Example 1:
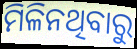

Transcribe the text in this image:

ମିଳିନଥିବାରୁ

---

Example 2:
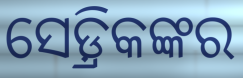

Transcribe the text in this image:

ସେଡ଼୍ରିକଙ୍କର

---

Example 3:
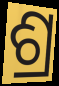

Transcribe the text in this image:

ଶ୍ର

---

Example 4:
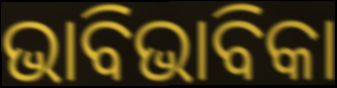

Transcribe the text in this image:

ଭାବିଭାବିକା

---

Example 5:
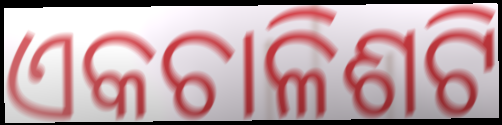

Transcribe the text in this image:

ଏକଚାଳିଶଟି